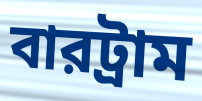
বারট্রাম